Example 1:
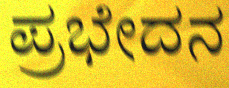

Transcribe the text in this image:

ಪ್ರಭೇದನ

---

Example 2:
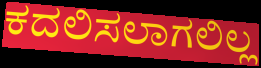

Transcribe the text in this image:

ಕದಲಿಸಲಾಗಲಿಲ್ಲ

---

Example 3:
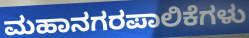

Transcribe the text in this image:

ಮಹಾನಗರಪಾಲಿಕೆಗಳು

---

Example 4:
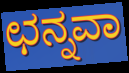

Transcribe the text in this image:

ಛನ್ನವಾ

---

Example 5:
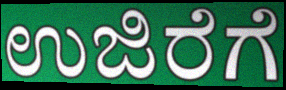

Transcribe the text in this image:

ಉಜಿರೆಗೆ